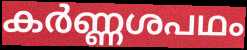
കർണ്ണശപഥം